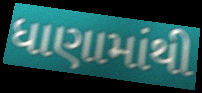
ધાણામાંથી